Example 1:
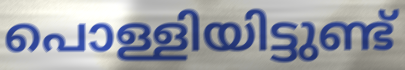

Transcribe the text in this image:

പൊള്ളിയിട്ടുണ്ട്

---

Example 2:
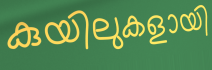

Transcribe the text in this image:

കുയിലുകളായി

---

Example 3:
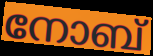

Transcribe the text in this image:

നോബ്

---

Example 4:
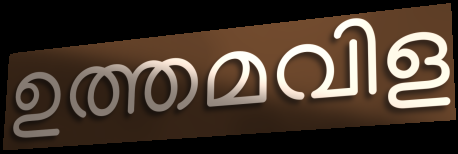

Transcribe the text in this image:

ഉത്തമവിള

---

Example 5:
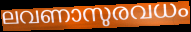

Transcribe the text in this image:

ലവണാസുരവധം